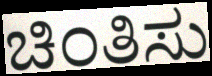
ಚಿಂತಿಸು